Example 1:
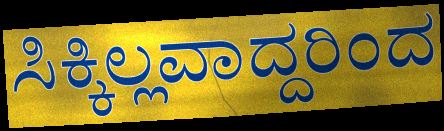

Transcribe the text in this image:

ಸಿಕ್ಕಿಲ್ಲವಾದ್ದರಿಂದ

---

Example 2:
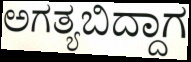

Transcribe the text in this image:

ಅಗತ್ಯಬಿದ್ದಾಗ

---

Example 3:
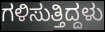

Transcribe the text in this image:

ಗಳಿಸುತ್ತಿದ್ದಳು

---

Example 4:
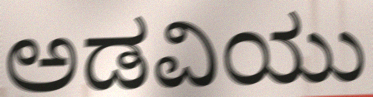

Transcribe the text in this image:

ಅಡವಿಯು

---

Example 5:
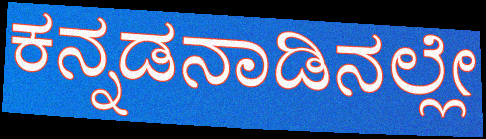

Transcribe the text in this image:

ಕನ್ನಡನಾಡಿನಲ್ಲೇ